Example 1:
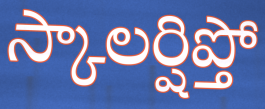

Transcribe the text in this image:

స్కాలర్షిప్తో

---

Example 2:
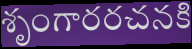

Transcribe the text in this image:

శృంగారరచనకి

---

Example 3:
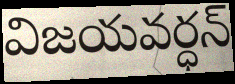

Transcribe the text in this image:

విజయవర్ధన్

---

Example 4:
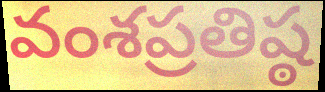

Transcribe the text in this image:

వంశప్రతిష్ఠ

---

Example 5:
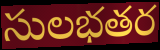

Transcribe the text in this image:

సులభతర